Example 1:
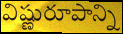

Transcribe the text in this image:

విష్ణురూపాన్ని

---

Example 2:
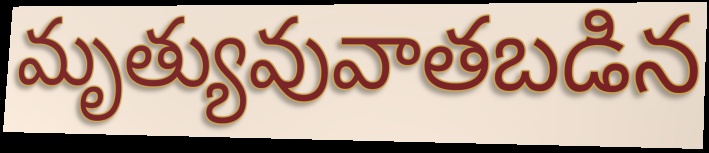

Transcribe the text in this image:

మృత్యువువాతబడిన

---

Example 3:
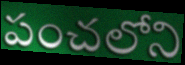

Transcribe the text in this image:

పంచలోని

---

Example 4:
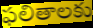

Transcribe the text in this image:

ఫలితాలకు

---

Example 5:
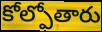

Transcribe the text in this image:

కోల్పోతారు